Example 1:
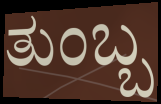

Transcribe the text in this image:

ತುಂಬ್ಬ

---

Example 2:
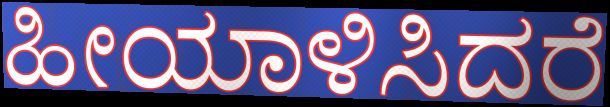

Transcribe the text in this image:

ಹೀಯಾಳಿಸಿದರೆ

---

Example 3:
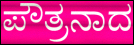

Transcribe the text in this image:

ಪೌತ್ರನಾದ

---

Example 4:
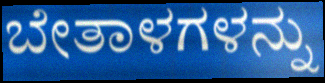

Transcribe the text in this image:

ಬೇತಾಳಗಳನ್ನು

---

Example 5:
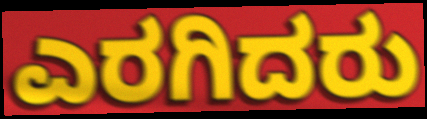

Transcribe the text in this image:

ಎರಗಿದರು